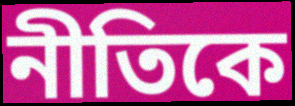
নীতিকে